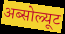
अब्सोल्यूट